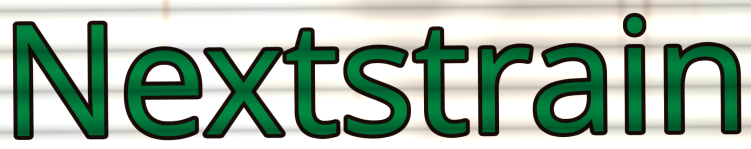
Nextstrain